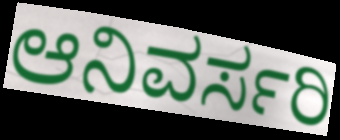
ಆನಿವರ್ಸರಿ